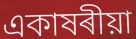
একাষৰীয়া